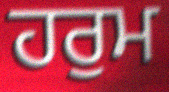
ਹਰੁਮ